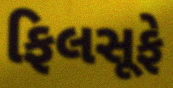
ફિલસૂફે